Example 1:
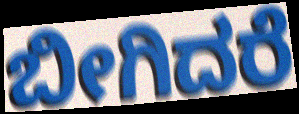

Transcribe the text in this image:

ಬೀಗಿದರೆ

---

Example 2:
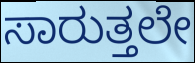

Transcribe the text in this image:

ಸಾರುತ್ತಲೇ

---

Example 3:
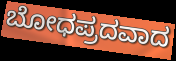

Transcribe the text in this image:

ಬೋಧಪ್ರದವಾದ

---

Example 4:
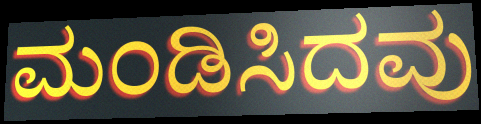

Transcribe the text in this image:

ಮಂಡಿಸಿದವು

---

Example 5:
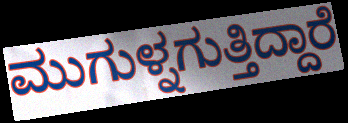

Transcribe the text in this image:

ಮುಗುಳ್ನಗುತ್ತಿದ್ದಾರೆ